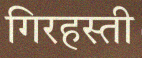
गिरहस्ती